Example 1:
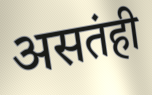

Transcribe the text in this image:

असतंही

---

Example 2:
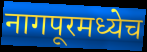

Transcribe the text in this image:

नागपूरमध्येच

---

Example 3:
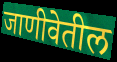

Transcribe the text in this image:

जाणीवेतील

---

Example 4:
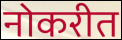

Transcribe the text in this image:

नोकरीत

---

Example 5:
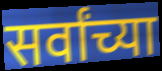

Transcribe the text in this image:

सर्वांच्या